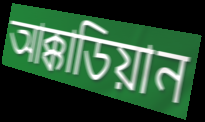
আক্কাডিয়ান